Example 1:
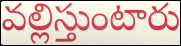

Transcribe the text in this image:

వల్లిస్తుంటారు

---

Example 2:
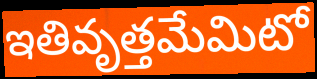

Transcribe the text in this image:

ఇతివృత్తమేమిటో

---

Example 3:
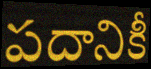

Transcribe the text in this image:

పదానికీ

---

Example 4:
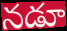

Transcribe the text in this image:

నడూ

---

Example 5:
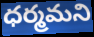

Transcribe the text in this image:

ధర్మమని